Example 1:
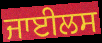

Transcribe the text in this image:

ਜਾਈਲਸ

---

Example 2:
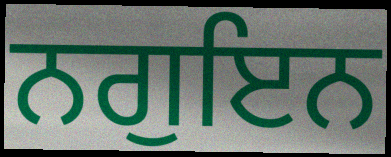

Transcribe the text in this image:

ਨਗੁਇਨ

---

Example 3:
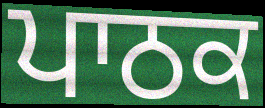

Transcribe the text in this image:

ਪਾਠਕ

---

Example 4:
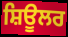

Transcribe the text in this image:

ਸ਼ਿਊਲਰ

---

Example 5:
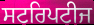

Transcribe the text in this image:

ਸਟਰਿਪਟੀਜ